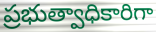
ప్రభుత్వాధికారిగా